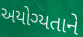
અયોગ્યતાને